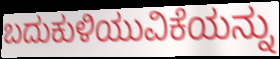
ಬದುಕುಳಿಯುವಿಕೆಯನ್ನು